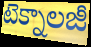
టెక్నాలజీ